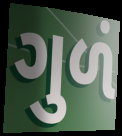
ગુળં